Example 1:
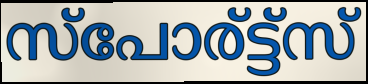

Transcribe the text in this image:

സ്പോര്ട്ട്സ്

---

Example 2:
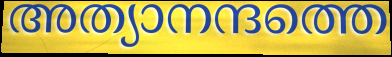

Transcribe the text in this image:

അത്യാനന്ദത്തെ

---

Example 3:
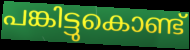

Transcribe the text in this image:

പങ്കിട്ടുകൊണ്ട്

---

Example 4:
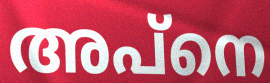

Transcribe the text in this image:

അപ്നെ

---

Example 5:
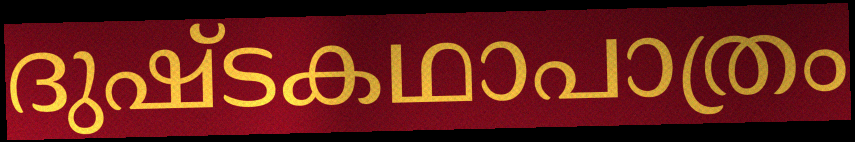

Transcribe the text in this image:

ദുഷ്ടകഥാപാത്രം